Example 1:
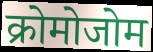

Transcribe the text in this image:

क्रोमोजोम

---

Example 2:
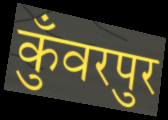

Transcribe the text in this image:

कुँवरपुर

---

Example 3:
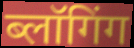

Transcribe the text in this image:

ब्‍लॉगिंग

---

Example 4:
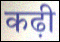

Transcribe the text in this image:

कढ़ी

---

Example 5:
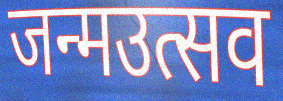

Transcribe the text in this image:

जन्मउत्सव